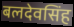
बलदेवसिंह